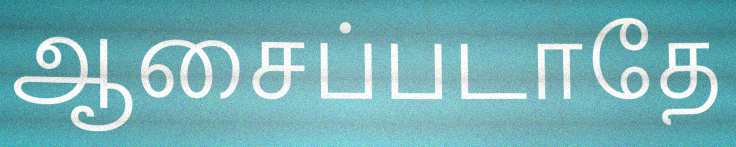
ஆசைப்படாதே